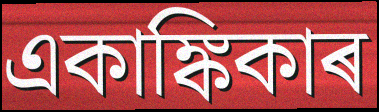
একাঙ্কিকাৰ